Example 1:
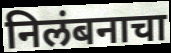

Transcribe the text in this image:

निलंबनाचा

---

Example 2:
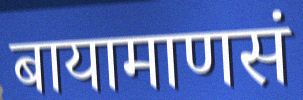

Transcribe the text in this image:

बायामाणसं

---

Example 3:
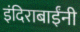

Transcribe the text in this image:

इंदिराबाईंनी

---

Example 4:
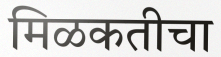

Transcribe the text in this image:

मिळकतीचा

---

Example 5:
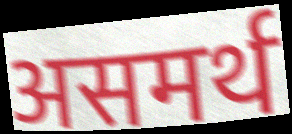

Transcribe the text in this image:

असमर्थ